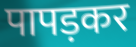
पापड़कर